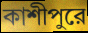
কাশীপুরে